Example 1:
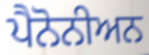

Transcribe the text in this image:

ਪੈਨੋਨੀਅਨ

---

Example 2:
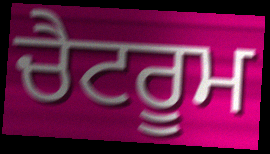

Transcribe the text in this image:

ਚੈਟਰੂਮ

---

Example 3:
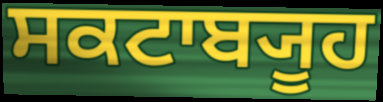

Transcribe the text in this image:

ਸਕਟਾਬ੍ਯੂਹ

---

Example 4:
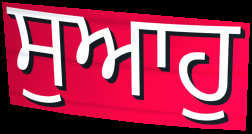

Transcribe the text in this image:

ਸੁਆਹੁ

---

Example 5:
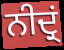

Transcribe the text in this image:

ਨੀਦ੍ਰਂ